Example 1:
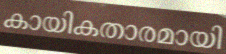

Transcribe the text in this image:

കായികതാരമായി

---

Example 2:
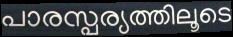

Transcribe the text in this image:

പാരസ്പര്യത്തിലൂടെ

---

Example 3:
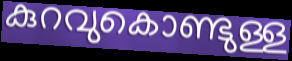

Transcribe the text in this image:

കുറവുകൊണ്ടുള്ള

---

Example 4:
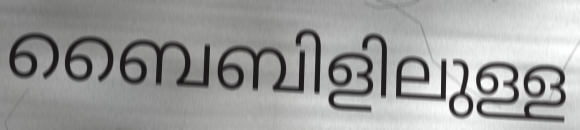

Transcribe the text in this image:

ബൈബിളിലുള്ള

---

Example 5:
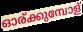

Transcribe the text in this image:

ഓര്ക്കുമ്പോള്